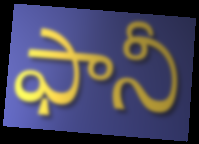
ఫానీ